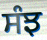
ਸੰਝ